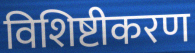
विशिष्टीकरण